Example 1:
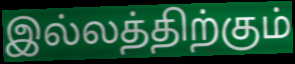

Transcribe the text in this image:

இல்லத்திற்கும்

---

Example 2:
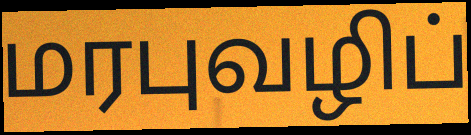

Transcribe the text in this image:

மரபுவழிப்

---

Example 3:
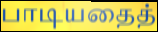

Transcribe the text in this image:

பாடியதைத்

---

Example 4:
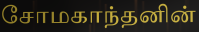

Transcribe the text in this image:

சோமகாந்தனின்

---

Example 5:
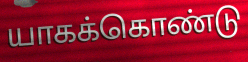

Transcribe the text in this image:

யாகக்கொண்டு